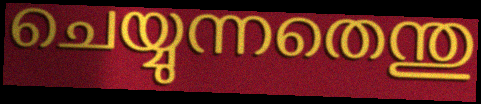
ചെയ്യുന്നതെന്തു